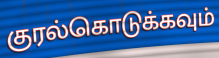
குரல்கொடுக்கவும்